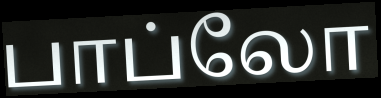
பாப்லோ